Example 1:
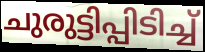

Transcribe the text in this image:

ചുരുട്ടിപ്പിടിച്ച്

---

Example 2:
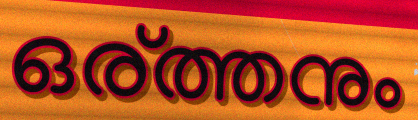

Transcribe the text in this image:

ഒര്ത്തനും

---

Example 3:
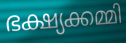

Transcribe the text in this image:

ഭക്ഷ്യക്കമ്മി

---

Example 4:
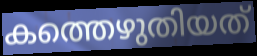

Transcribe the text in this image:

കത്തെഴുതിയത്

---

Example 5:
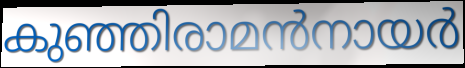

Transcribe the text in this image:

കുഞ്ഞിരാമൻനായർ